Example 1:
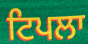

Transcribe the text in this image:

ਟਿਪਲਾ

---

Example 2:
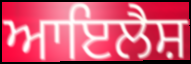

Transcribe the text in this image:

ਆਇਲੈਸ਼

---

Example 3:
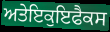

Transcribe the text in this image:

ਅਤੇਇਕੁਇਫੈਕਸ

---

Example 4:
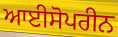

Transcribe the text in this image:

ਆਈਸੋਪਰੀਨ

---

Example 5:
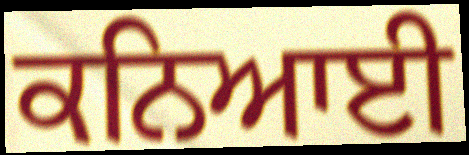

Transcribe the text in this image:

ਕਨਿਆਈ